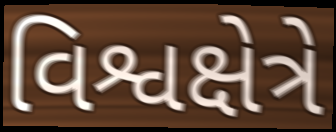
વિશ્વક્ષેત્રે